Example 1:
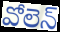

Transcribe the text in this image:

వోలెన్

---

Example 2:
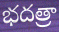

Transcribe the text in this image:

భదత్రా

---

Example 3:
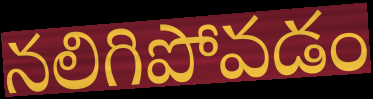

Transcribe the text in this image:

నలిగిపోవడం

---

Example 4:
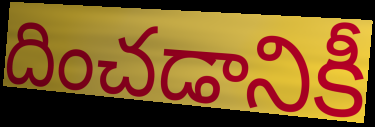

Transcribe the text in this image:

దించడానికీ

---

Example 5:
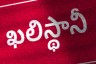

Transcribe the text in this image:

ఖలిస్థానీ